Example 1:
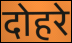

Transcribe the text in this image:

दोहरे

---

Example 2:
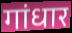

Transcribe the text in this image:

गांधार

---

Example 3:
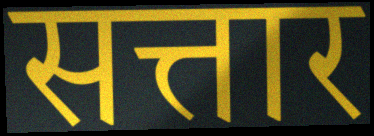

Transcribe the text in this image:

सत्तार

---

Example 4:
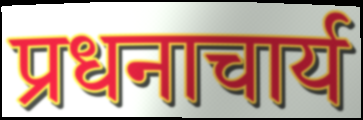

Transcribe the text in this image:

प्रधनाचार्य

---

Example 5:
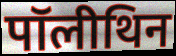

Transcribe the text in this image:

पॉलीथिन